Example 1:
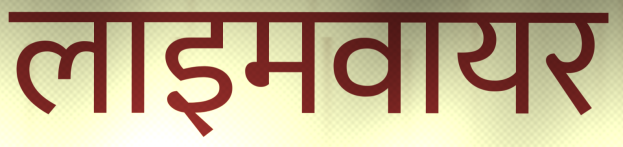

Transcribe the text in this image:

लाइमवायर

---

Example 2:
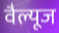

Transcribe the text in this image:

वैल्यूज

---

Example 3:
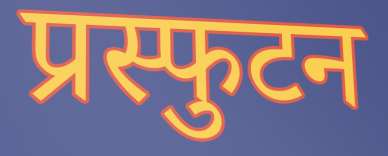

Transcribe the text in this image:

प्रस्फुटन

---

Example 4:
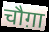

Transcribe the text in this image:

चौग़ा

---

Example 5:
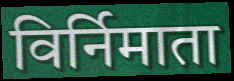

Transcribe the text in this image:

विर्निमाता